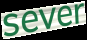
sever